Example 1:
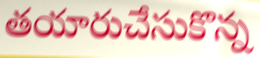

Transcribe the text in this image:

తయారుచేసుకొన్న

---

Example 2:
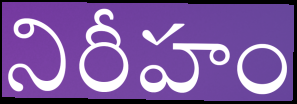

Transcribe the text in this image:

నిరీహం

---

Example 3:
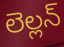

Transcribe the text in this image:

లెల్లన్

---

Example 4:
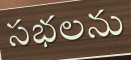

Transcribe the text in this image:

సభలను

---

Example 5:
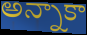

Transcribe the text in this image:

అన్నాకా